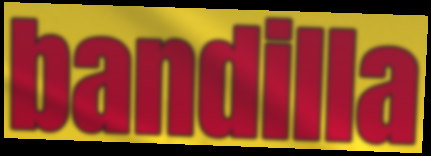
bandilla